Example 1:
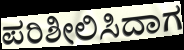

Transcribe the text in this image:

ಪರಿಶೀಲಿಸಿದಾಗ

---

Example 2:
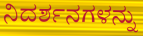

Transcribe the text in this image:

ನಿದರ್ಶನಗಳನ್ನು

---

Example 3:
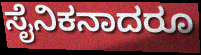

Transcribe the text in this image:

ಸೈನಿಕನಾದರೂ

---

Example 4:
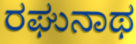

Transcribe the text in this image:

ರಘುನಾಥ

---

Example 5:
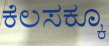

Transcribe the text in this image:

ಕೆಲಸಕ್ಕೂ